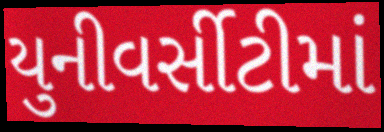
યુનીવર્સીટીમાં